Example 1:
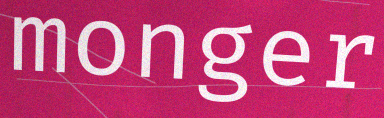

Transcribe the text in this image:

monger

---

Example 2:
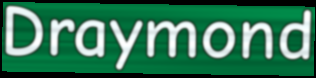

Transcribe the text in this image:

Draymond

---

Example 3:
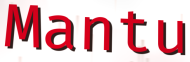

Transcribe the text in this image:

Mantu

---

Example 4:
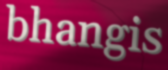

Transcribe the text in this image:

bhangis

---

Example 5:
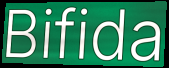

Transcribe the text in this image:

Bifida